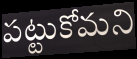
పట్టుకోమని